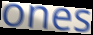
ones